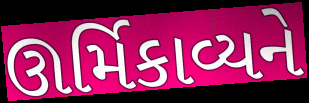
ઊર્મિકાવ્યને